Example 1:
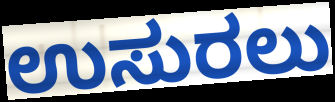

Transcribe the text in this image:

ಉಸುರಲು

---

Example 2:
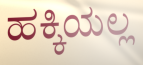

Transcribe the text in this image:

ಹಕ್ಕಿಯಲ್ಲ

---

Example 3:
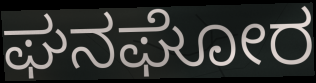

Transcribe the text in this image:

ಘನಘೋರ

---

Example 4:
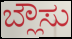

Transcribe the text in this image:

ಬ್ಲೌಸು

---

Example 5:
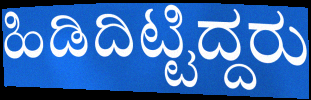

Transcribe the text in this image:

ಹಿಡಿದಿಟ್ಟಿದ್ದರು